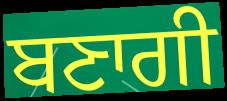
ਬਣਾਗੀ